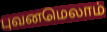
புவனமெலாம்